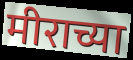
मीराच्या